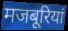
मजबूरियां